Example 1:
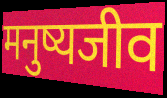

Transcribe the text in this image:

मनुष्यजीव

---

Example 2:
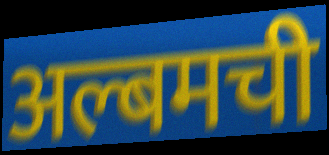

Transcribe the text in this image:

अल्बमची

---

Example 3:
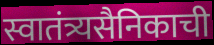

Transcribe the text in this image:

स्वातंत्र्यसैनिकाची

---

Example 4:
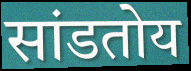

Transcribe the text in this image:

सांडतोय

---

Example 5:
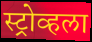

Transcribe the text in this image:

स्ट्रोव्हला